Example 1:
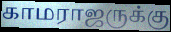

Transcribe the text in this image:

காமராஜருக்கு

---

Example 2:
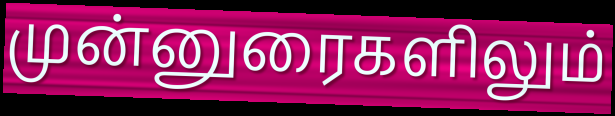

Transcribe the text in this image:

முன்னுரைகளிலும்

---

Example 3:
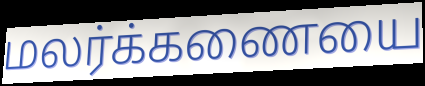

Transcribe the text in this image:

மலர்க்கணையை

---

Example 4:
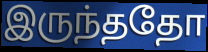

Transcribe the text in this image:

இருந்ததோ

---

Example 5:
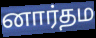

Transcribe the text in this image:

னார்தம